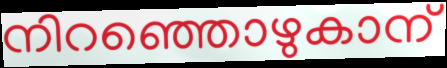
നിറഞ്ഞൊഴുകാന്